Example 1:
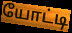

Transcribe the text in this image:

யோட்டி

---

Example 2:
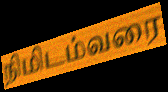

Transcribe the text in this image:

நிமிடம்வரை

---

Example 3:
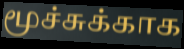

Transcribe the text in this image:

மூச்சுக்காக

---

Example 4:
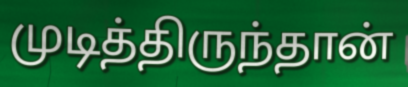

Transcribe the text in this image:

முடித்திருந்தான்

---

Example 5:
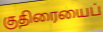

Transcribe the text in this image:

குதிரையைப்